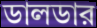
ডালডার